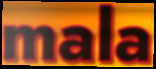
mala